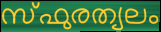
സ്ഫുരത്യലം